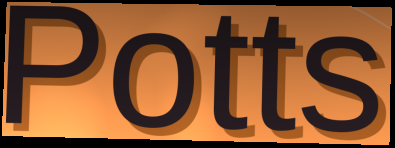
Potts